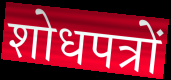
शोधपत्रों